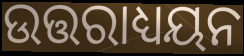
ଉତ୍ତରାଧ୍ୟୟନ